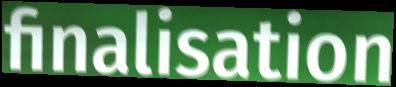
finalisation